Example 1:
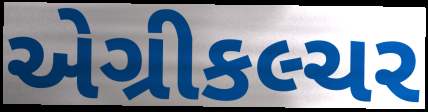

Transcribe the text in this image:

એગ્રીકલ્ચર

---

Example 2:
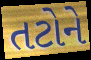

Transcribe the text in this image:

તટોને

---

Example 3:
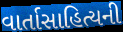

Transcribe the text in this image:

વાર્તાસાહિત્યની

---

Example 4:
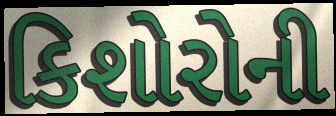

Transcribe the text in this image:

કિશોરોની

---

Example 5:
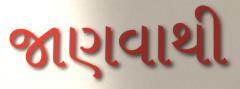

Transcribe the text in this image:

જાણવાથી